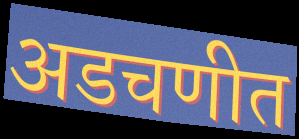
अडचणीत